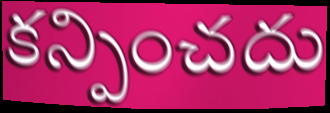
కన్పించదు